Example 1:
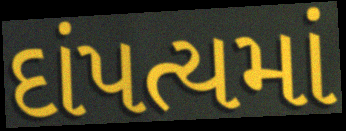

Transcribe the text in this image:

દાંપત્યમાં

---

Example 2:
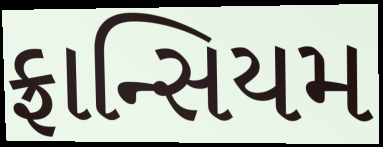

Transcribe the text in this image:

ફ્રાન્સિયમ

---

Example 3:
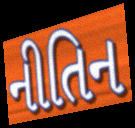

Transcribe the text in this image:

નીતિન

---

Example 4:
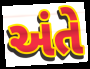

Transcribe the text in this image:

અંતે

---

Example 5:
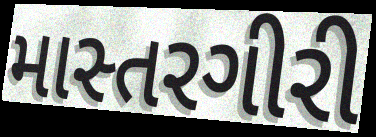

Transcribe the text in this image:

માસ્તરગીરી